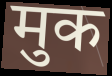
मुक